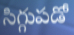
సిగ్గుపడో